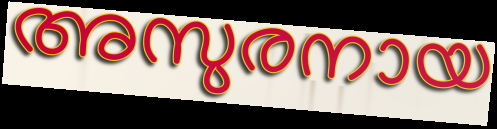
അസുരനായ